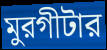
মুরগীটার